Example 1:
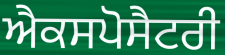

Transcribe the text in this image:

ਐਕਸਪੋਸੈਟਰੀ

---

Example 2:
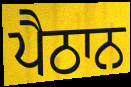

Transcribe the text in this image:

ਪੈਠਾਨ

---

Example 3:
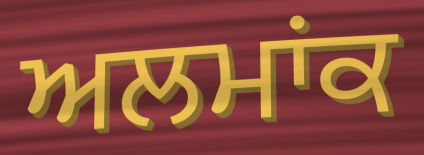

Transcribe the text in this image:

ਅਲਮਾਂਕ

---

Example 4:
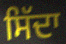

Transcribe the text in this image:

ਸਿੱਦਾ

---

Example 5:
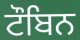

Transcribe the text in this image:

ਟੌਬਿਨ